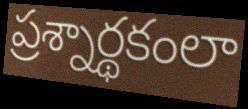
ప్రశ్నార్థకంలా